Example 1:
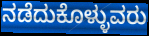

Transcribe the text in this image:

ನಡೆದುಕೊಳ್ಳುವರು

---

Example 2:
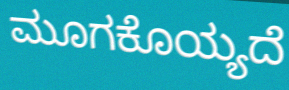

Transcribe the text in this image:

ಮೂಗಕೊಯ್ಯದೆ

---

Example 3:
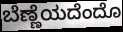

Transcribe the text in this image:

ಬೆಣ್ಣೆಯದೆಂದೊ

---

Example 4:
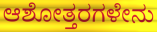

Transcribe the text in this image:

ಆಶೋತ್ತರಗಳೇನು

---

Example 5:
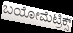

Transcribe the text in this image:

ಬಯೋಮೆಟ್ರಿಕ್ಸ್